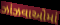
ઝાંઝવાઓમાં